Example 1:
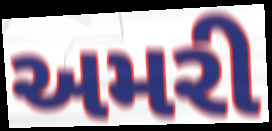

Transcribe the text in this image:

અમરી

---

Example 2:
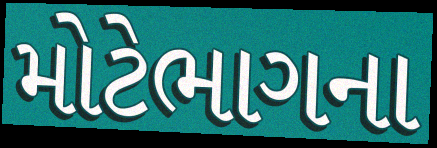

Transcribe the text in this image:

મોટેભાગના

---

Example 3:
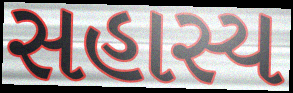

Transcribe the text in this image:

સહાસ્ય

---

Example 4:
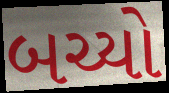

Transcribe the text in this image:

બચ્યો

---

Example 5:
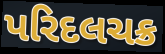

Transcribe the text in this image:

પરિદલચક્ર